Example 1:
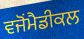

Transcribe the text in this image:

ਵਜੋਂਮੈਡੀਕਲ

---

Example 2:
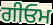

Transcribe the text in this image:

ਗੀਓਮ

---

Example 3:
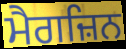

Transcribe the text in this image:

ਮੈਗਜ਼ਿਨ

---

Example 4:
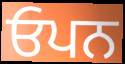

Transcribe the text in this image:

ਓਪਨ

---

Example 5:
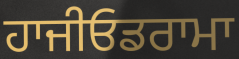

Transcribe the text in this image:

ਹਾਜੀਓਡਰਾਮਾ